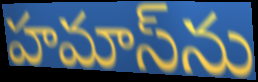
హమాస్‌ను